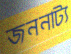
জননাট্য